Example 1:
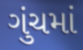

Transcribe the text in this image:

ગુંચમાં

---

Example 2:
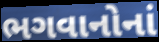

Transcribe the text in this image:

ભગવાનોનાં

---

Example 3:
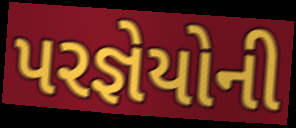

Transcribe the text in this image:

પરજ્ઞેયોની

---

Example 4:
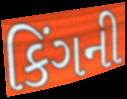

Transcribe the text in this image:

કિંગની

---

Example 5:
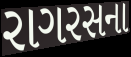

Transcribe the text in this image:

રાગરસના